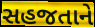
સહજતાને